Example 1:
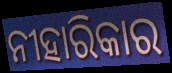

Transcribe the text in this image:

ନୀହାରିକାର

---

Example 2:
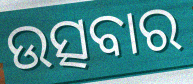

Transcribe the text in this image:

ଉତ୍ସବାର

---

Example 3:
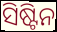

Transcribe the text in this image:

ସିଷ୍ଟିନ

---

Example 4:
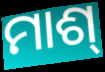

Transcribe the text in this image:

ମାଶ୍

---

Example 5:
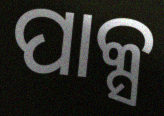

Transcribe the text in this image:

ପାକ୍ସ